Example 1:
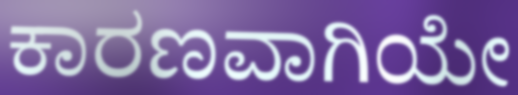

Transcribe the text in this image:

ಕಾರಣವಾಗಿಯೇ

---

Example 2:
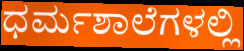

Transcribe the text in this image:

ಧರ್ಮಶಾಲೆಗಳಲ್ಲಿ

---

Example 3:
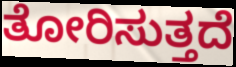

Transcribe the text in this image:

ತೋರಿಸುತ್ತದೆ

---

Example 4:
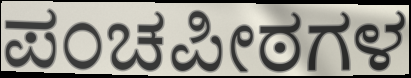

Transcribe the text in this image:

ಪಂಚಪೀಠಗಳ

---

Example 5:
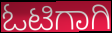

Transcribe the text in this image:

ಓಟಿಗಾಗಿ